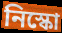
নিস্কো